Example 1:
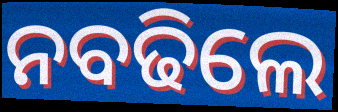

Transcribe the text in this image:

ନବଢିଲେ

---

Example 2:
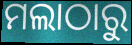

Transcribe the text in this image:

ମଲାଠାରୁ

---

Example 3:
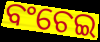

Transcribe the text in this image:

ବଂଚେଇ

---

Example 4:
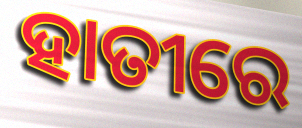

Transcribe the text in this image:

ହାତୀରେ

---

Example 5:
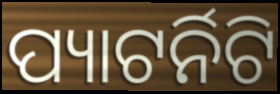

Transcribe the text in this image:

ପ୍ୟାଟର୍ନିଟି